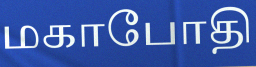
மகாபோதி